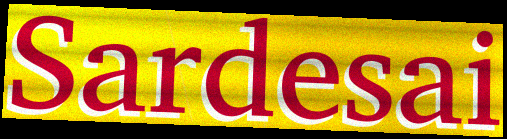
Sardesai